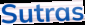
Sutras